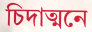
চিদাত্মনে